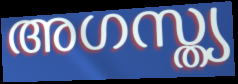
അഗസ്ത്യ